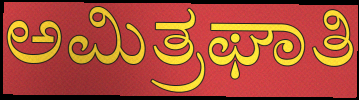
ಅಮಿತ್ರಘಾತಿ